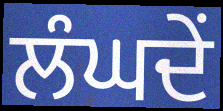
ਲੰਘਦੇਂ